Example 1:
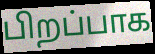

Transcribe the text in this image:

பிறப்பாக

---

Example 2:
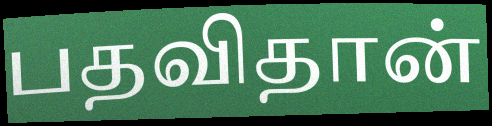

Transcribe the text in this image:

பதவிதான்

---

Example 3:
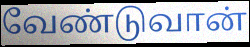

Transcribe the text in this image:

வேண்டுவான்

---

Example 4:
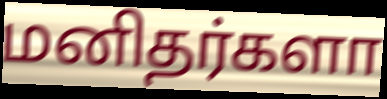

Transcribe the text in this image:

மனிதர்களா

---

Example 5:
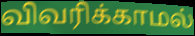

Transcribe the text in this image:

விவரிக்காமல்